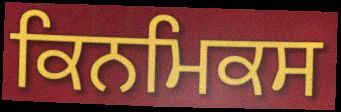
ਕਿਨਮਿਕਸ